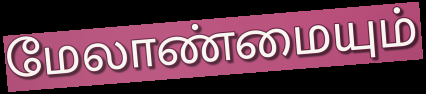
மேலாண்மையும்